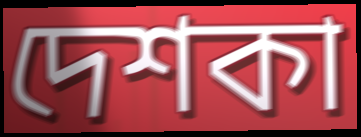
দেশকা